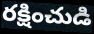
రక్షించుడి